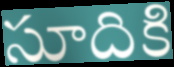
సూదికి